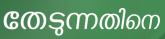
തേടുന്നതിനെ